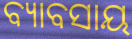
ବ୍ୟାବସାୟ